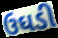
ઉઘડી